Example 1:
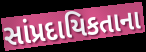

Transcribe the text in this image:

સાંપ્રદાયિકતાના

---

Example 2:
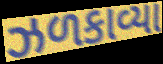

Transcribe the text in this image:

ઝળકાવ્યા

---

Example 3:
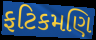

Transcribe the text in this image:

ફટિકમણિ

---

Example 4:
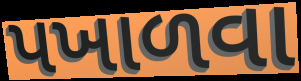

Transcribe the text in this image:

પખાળવા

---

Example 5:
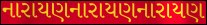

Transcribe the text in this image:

નારાયણનારાયણનારાયણ